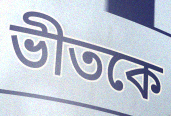
ভীতকে